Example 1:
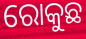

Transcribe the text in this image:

ରୋକୁଛ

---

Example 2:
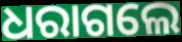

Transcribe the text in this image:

ଧରାଗଲେ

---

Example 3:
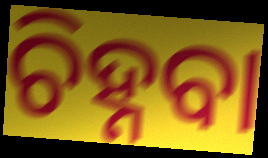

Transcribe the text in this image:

ଚିହ୍ନବା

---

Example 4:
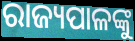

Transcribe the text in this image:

ରାଜ୍ୟପାଳଙ୍କୁ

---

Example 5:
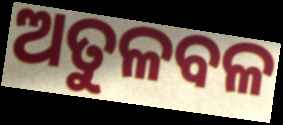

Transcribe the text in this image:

ଅତୁଳବଳ